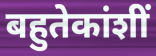
बहुतेकांशीं